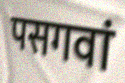
पसगवां